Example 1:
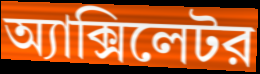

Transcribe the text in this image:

অ্যাক্সিলেটর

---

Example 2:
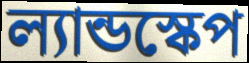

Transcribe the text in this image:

ল্যান্ডস্কেপ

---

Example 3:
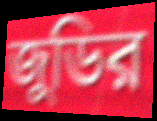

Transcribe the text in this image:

জুডির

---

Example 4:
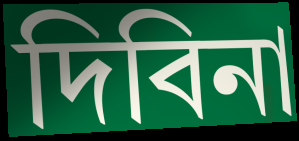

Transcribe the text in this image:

দিবিনা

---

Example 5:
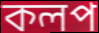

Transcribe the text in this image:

কলপ